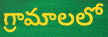
గ్రామాలలో